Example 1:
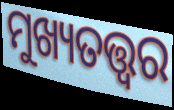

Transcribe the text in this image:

ମୁଖ୍ୟତତ୍ତ୍ୱର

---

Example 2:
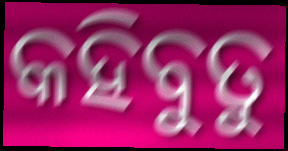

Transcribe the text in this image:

କହିବୁତୁ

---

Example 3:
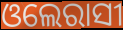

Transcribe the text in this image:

ଓଲେରାସୀ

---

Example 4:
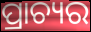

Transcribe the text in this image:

ପ୍ରାଚ୍ୟର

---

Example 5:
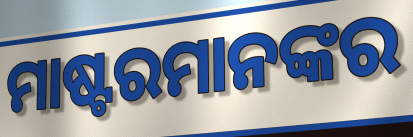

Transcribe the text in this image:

ମାଷ୍ଟରମାନଙ୍କର